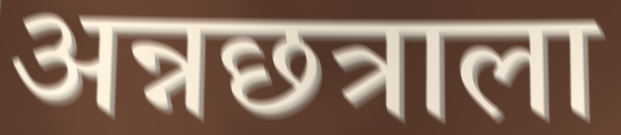
अन्नछत्राला